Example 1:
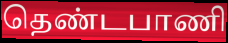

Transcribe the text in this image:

தெண்டபாணி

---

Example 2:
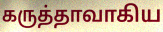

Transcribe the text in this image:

கருத்தாவாகிய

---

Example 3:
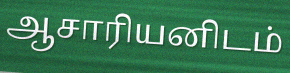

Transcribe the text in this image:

ஆசாரியனிடம்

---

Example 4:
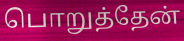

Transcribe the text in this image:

பொறுத்தேன்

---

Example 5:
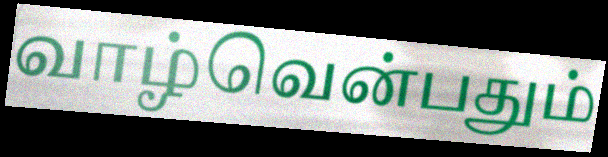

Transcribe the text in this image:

வாழ்வென்பதும்